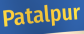
Patalpur